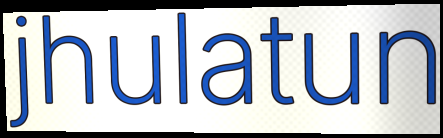
jhulatun